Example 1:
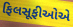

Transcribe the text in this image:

ફિલસૂફીઓએ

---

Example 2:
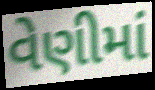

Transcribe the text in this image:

વેણીમાં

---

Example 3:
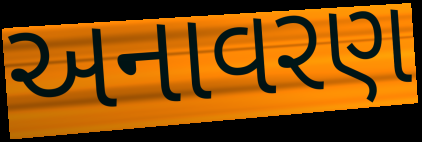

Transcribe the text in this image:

અનાવરણ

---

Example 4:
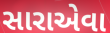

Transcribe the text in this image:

સારાએવા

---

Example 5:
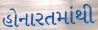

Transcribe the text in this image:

હોનારતમાંથી